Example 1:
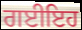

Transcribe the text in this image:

ਗਈਇਹ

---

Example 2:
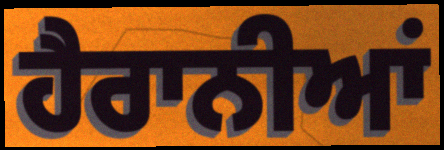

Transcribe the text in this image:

ਹੈਰਾਨੀਆਂ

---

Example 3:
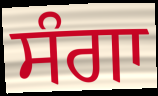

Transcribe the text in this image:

ਸੰਗਾ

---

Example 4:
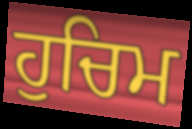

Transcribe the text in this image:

ਹੁਚਿਮ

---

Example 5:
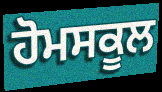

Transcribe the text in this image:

ਹੋਮਸਕੂਲ